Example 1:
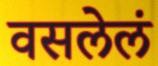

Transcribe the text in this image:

वसलेलं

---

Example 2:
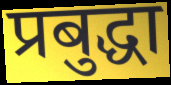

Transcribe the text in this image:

प्रबुद्धा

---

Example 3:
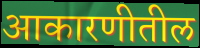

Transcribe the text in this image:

आकारणीतील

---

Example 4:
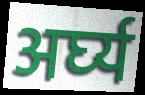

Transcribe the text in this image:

अर्घ्य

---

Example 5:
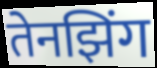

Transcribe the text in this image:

तेनझिंग